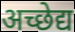
अच्छेद्य